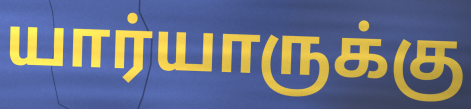
யார்யாருக்கு